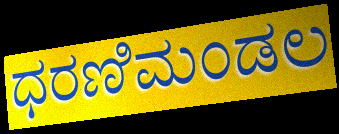
ಧರಣಿಮಂಡಲ